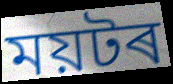
ময়টৰ